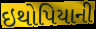
ઇથોપિયાની